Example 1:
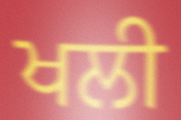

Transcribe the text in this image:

ਖਲੀ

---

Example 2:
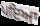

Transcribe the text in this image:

ਪਇਆ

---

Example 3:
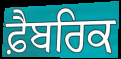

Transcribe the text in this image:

ਫ਼ੈਬਰਿਕ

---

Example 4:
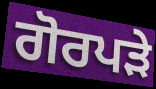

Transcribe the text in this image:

ਗੋਰਪੜੇ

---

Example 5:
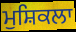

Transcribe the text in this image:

ਮੁਸ਼ਿਕਲਾ